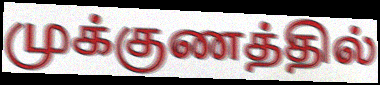
முக்குணத்தில்